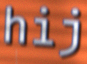
hij